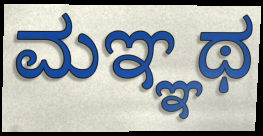
ಮಞ್ಞಥ